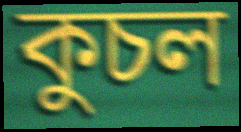
কুচল